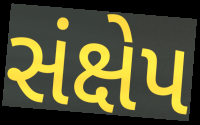
સંક્ષેપ